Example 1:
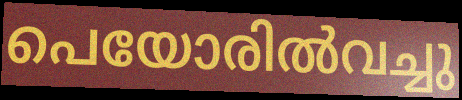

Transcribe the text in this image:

പെയോരിൽവച്ചു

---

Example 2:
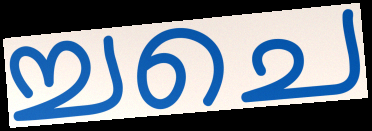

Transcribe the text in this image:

ച്ചചെ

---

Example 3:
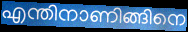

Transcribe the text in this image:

എന്തിനാണിങ്ങിനെ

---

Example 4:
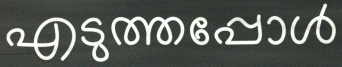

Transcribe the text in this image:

എടുത്തപ്പോൾ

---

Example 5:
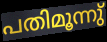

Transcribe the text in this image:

പതിമൂന്നു്